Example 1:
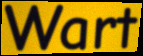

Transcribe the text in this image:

Wart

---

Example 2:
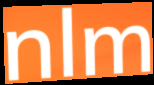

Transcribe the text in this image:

nlm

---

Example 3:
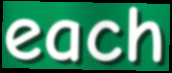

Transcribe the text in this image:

each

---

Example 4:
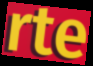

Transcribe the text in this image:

rte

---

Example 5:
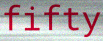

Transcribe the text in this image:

fifty